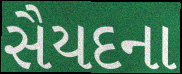
સૈયદના